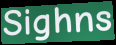
Sighns